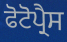
ਫੋਟੋਪ੍ਰੈਸ